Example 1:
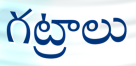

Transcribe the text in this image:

గట్రాలు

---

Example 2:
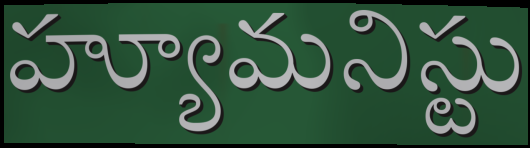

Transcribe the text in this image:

హ్యూమనిస్టు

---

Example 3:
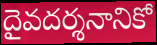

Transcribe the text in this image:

దైవదర్శనానికో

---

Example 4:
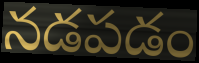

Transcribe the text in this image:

నడపడం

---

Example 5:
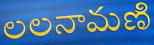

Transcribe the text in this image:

లలనామణి